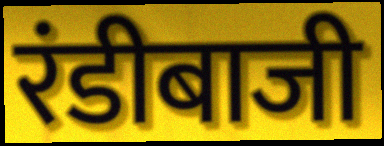
रंडीबाजी